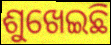
ଶୁଖେଇଛି